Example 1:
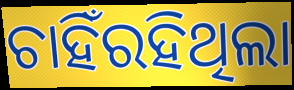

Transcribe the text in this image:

ଚାହିଁରହିଥିଲା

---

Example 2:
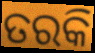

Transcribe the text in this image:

ତରକି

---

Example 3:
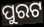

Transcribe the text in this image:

ପୁରଟ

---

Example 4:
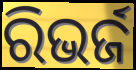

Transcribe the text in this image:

ରିଭର୍ଜ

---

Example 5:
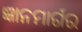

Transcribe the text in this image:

ଜ୍ଞାନମାର୍ଗର